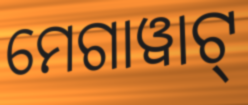
ମେଗାୱାଟ୍